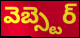
వెబ్స్టెర్